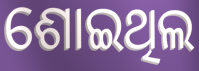
ଶୋଇଥିଲ